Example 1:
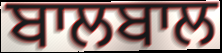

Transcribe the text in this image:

ਬਾਲਬਾਲ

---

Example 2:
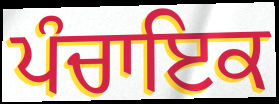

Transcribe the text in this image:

ਪੰਚਾਇਕ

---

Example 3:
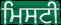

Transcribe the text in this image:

ਮਿਸਟੀ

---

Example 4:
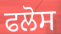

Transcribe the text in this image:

ਫਲੋਸ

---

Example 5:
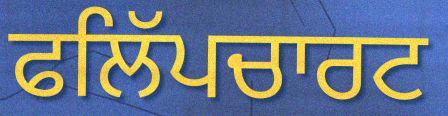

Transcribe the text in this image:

ਫਲਿੱਪਚਾਰਟ